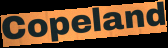
Copeland